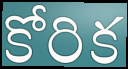
కోరిక